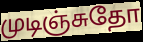
முடிஞ்சுதோ